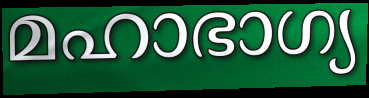
മഹാഭാഗ്യ